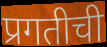
प्रगतीची